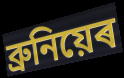
ব্ৰুনিয়েৰ